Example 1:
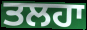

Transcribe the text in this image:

ਤਲਹਾ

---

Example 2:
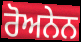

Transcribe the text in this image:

ਰੋਅਨੇਨ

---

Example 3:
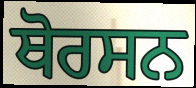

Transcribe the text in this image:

ਥੋਰਸਨ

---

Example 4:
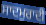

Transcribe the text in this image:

ਸਾਦਮੁਰਾਦੀ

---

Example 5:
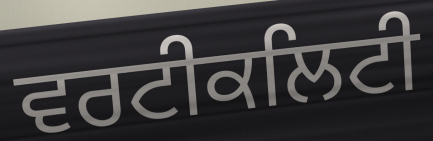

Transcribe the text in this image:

ਵਰਟੀਕਲਿਟੀ